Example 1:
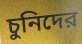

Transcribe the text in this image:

চুনিদের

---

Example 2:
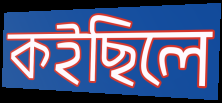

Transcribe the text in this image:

কইছিলে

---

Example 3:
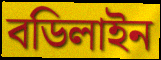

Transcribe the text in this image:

বডিলাইন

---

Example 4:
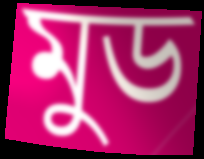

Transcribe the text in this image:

মুড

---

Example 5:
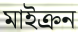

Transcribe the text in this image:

মাইক্রন